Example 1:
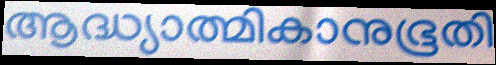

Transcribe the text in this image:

ആദ്ധ്യാത്മികാനുഭൂതി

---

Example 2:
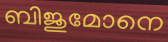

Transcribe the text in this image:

ബിജുമോനെ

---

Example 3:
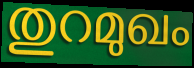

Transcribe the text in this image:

തുറമുഖം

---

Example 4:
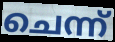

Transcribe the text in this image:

ചെന്ന്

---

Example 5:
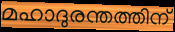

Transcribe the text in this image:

മഹാദുരന്തത്തിന്